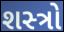
શસ્‍ત્રો